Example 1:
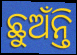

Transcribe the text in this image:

ଛୁଅଁନ୍ତି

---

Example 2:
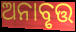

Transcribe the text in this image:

ଅନାବୃତ୍ତ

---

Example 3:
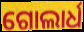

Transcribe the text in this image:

ଗୋଲାର୍ଧ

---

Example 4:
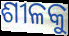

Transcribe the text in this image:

ଶୀଳକୁ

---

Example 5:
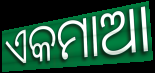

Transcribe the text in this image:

ଏକମାଆ